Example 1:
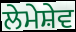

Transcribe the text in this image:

ਲੇਮੇਸ਼ੇਵ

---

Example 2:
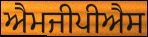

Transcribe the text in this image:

ਐਮਜੀਪੀਐਸ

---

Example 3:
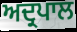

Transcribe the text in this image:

ਅਦ੍ਰਪਾਲ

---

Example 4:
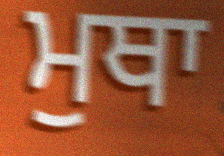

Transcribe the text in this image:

ਮੁਥਾ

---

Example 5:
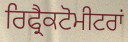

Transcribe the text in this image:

ਰਿਫ੍ਰੈਕਟੋਮੀਟਰਾਂ